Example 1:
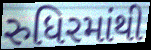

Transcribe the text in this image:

રુધિરમાંથી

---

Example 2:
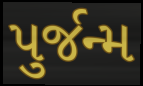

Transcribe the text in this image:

પુર્જન્મ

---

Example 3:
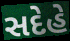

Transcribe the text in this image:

સદેહે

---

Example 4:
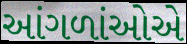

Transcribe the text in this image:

આંગળાંઓએ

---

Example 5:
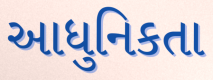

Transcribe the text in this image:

આધુનિકતા